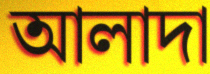
আলাদা